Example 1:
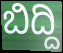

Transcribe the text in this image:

ಬಿದ್ದಿ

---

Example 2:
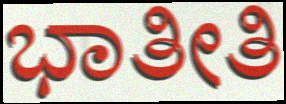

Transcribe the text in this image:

ಭಾತೀತಿ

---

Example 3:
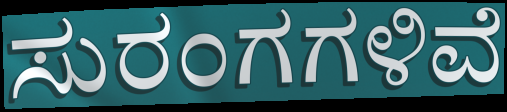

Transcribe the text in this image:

ಸುರಂಗಗಳಿವೆ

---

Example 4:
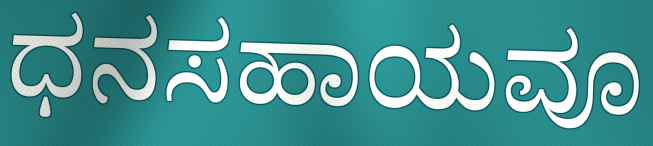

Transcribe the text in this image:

ಧನಸಹಾಯವೂ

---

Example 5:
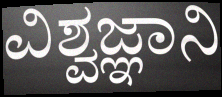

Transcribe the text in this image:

ವಿಶ್ವಜ್ಞಾನಿ